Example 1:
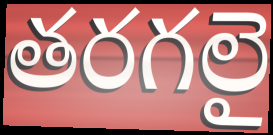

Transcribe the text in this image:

తరగలై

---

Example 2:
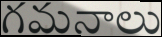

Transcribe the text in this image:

గమనాలు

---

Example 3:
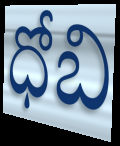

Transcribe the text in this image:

ధోబి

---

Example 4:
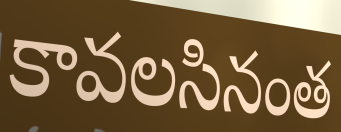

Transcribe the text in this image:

కావలసినంత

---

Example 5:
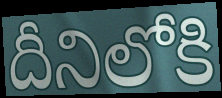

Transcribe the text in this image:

దీనిలోకి